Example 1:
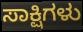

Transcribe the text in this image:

ಸಾಕ್ಷಿಗಳು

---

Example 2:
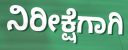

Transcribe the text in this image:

ನಿರೀಕ್ಷೆಗಾಗಿ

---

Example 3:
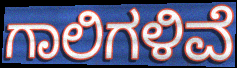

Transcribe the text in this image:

ಗಾಲಿಗಳಿವೆ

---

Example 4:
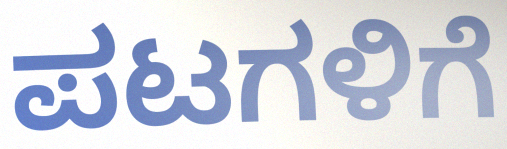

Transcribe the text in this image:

ಪಟಗಳಿಗೆ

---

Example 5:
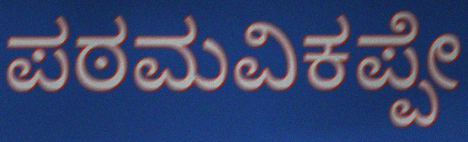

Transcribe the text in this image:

ಪಠಮವಿಕಪ್ಪೇ